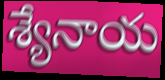
శ్యేనాయ